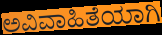
ಅವಿವಾಹಿತೆಯಾಗಿ